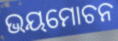
ଭୟମୋଚନ